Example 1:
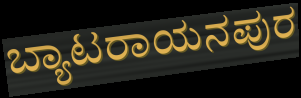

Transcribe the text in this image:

ಬ್ಯಾಟರಾಯನಪುರ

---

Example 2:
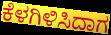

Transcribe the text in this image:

ಕೆಳಗಿಳಿಸಿದಾಗ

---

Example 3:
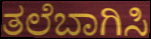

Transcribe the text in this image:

ತಲೆಬಾಗಿಸಿ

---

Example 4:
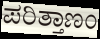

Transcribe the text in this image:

ಪರಿತ್ತಾಣಂ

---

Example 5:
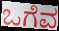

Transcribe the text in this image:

ಒಗೆವ